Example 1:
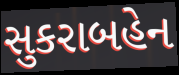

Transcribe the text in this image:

સુકરાબહેન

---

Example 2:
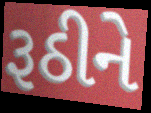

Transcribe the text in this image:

રૂઠીને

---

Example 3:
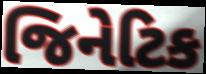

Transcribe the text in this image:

જિનેટિક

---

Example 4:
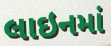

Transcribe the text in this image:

લાઇનમાં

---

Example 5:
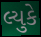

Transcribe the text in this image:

લ્યુકે